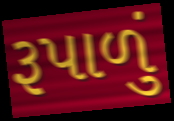
રૂપાળું